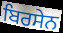
ਬਿਰਸੇਨ